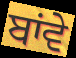
ਬਾਂਵੇ